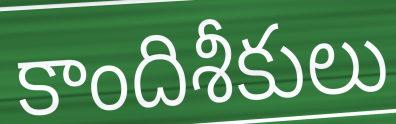
కాందిశీకులు